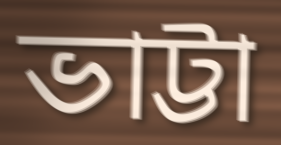
ভাট্টা